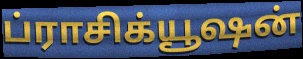
ப்ராசிக்யூஷன்